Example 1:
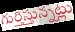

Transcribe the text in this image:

గుర్తిస్తున్నట్లు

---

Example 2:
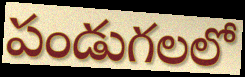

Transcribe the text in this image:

పండుగలలో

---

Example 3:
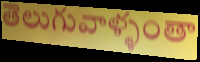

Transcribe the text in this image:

తెలుగువాళ్ళంతా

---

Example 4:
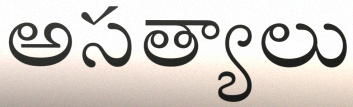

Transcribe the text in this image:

అసత్యాలు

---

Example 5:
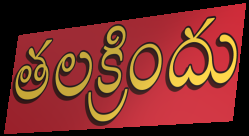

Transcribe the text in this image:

తలక్రిందు